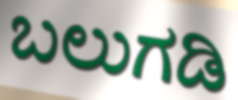
ಬಲುಗಡಿ